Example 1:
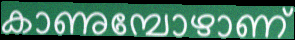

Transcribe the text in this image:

കാണുമ്പോഴാണ്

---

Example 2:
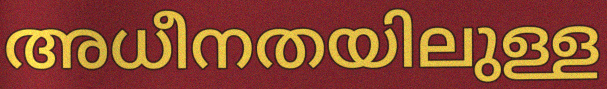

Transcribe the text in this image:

അധീനതയിലുള്ള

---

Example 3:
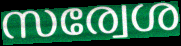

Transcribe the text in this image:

സര്വേശ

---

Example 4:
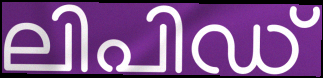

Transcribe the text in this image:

ലിപിഡ്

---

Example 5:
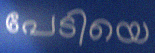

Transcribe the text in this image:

പേടിയെ